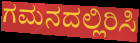
ಗಮನದಲ್ಲಿರಿಸಿ